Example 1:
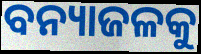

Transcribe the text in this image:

ବନ୍ୟାଜଳକୁ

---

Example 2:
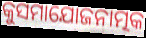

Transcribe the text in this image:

କୁସମାଯୋଜନାତ୍ମକ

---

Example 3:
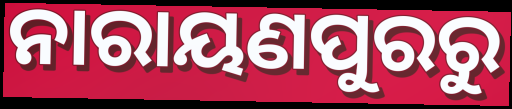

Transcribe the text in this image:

ନାରାୟଣପୁରରୁ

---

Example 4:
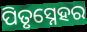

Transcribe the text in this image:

ପିତୃସ୍ନେହର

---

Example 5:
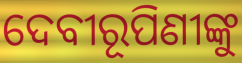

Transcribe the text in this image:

ଦେବୀରୂପିଣୀଙ୍କୁ